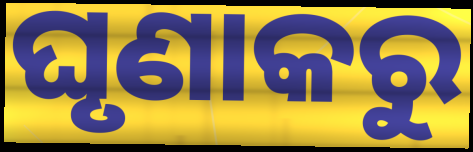
ଘୃଣାକରୁ